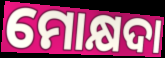
ମୋକ୍ଷଦା